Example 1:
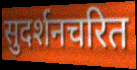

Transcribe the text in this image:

सुदर्शनचरित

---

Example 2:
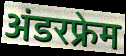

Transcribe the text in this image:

अंडरफ्रेम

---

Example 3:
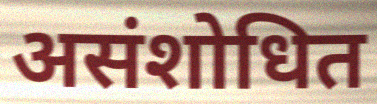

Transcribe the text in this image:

असंशोधित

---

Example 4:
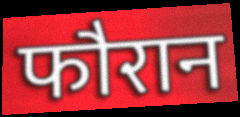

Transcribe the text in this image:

फौरान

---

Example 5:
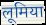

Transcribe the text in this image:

लूमिया